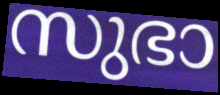
സുഭാ